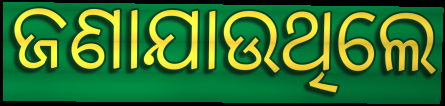
ଜଣାଯାଉଥିଲେ